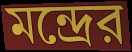
মন্দ্রের